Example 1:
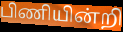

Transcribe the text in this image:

பிணியின்றி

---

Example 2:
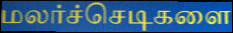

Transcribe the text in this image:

மலர்ச்செடிகளை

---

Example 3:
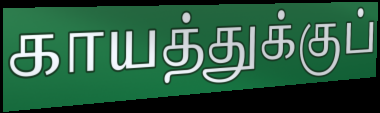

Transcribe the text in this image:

காயத்துக்குப்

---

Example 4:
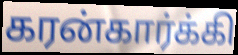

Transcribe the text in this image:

கரன்கார்க்கி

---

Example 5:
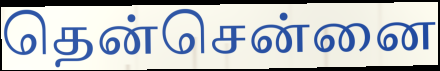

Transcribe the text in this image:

தென்சென்னை